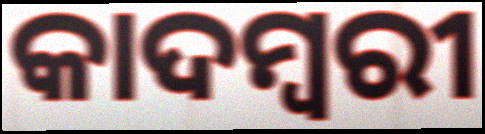
କାଦମ୍ୱରୀ